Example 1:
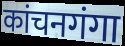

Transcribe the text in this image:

कांचनगंगा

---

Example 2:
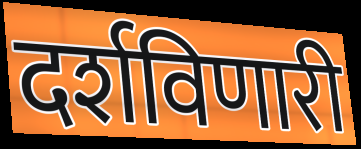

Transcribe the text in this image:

दर्शविणारी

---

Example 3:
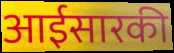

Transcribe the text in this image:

आईसारकी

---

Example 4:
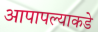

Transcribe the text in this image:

आपापल्याकडे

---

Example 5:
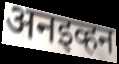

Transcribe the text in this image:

अनइव्हन